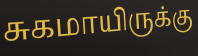
சுகமாயிருக்கு